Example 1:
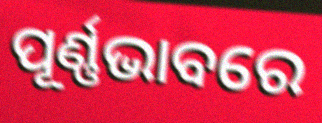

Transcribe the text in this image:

ପୂର୍ଣ୍ଣଭାବରେ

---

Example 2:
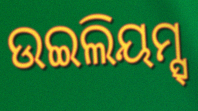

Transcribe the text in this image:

ଉଇଲିୟମ୍ସ୍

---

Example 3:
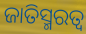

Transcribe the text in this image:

ଜାତିସ୍ମରତ୍ୱ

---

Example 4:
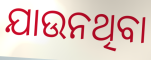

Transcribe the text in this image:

ଯାଉନଥିବା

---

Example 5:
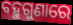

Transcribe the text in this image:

ବହୁଗୁଣାରେ